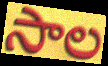
సాల